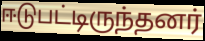
ஈடுபட்டிருந்தனர்